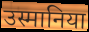
उस्मानिया